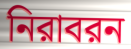
নিরাবরন